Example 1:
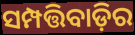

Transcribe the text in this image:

ସମ୍ପତ୍ତିବାଡ଼ିର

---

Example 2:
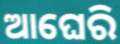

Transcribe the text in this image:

ଆଘେରି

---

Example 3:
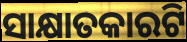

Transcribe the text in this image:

ସାକ୍ଷାତକାରଟି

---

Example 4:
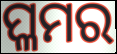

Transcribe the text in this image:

ପ୍ଳମର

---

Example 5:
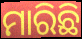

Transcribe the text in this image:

ମାରିଛି